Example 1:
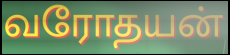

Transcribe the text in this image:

வரோதயன்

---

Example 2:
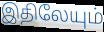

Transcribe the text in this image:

இதிலேயும்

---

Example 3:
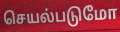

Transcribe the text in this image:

செயல்படுமோ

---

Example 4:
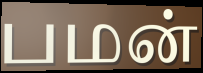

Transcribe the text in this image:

பமன்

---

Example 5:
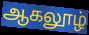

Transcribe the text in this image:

ஆகலூழ்